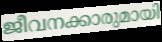
ജീവനക്കാരുമായി